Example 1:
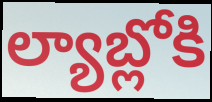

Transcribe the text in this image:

ల్యాబ్లోకి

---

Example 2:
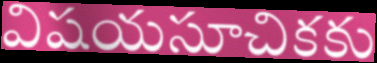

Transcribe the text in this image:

విషయసూచికకు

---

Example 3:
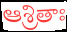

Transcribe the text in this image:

ఆశ్రితాః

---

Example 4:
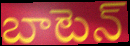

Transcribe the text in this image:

బాటెన్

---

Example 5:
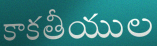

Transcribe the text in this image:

కాకతీయుల